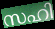
സഹി